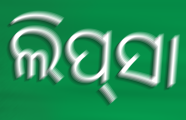
ଲିପ୍‌ସା